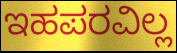
ಇಹಪರವಿಲ್ಲ